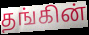
தங்கின்